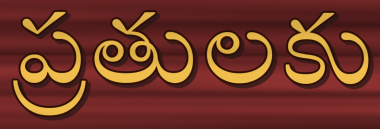
ప్రతులకు